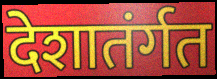
देशातंर्गत